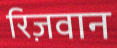
रिज़वान